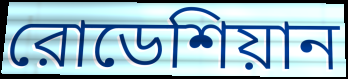
রোডেশিয়ান